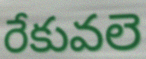
రేకువలె